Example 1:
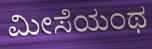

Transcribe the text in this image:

ಮೀಸೆಯಂಥ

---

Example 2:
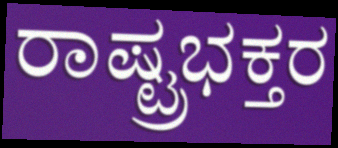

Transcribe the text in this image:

ರಾಷ್ಟ್ರಭಕ್ತರ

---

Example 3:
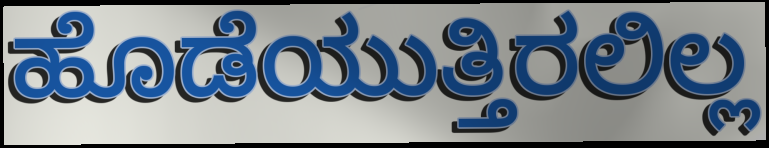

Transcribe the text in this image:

ಹೊಡೆಯುತ್ತಿರಲಿಲ್ಲ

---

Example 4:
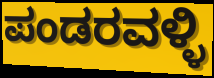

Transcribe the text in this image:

ಪಂಡರವಳ್ಳಿ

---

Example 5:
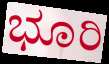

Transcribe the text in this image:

ಭೂರಿ